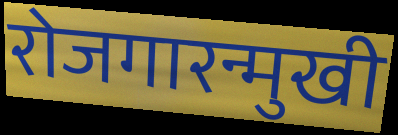
रोजगारन्मुखी